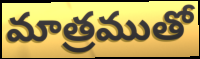
మాత్రముతో